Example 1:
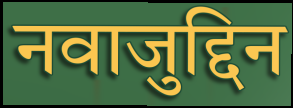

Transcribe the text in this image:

नवाजुद्दिन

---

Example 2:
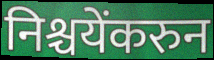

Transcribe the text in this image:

निश्चयेंकरुन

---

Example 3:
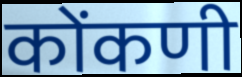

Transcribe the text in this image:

कोंकणी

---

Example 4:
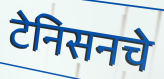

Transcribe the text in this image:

टेनिसनचे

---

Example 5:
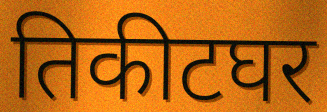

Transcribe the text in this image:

तिकीटघर